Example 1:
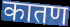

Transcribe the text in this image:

कातण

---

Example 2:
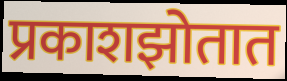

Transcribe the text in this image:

प्रकाशझोतात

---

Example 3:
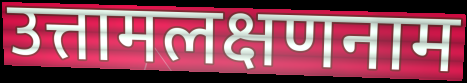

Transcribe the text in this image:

उत्तामलक्षणनाम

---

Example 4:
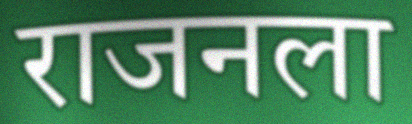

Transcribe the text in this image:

राजनला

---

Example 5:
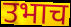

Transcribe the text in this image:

उभाच